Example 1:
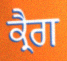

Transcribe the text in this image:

ਕ੍ਰੈਗ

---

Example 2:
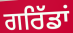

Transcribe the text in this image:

ਗਰਿੱਡਾਂ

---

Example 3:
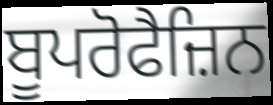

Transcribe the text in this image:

ਬੂਪਰੋਫੈਜ਼ਿਨ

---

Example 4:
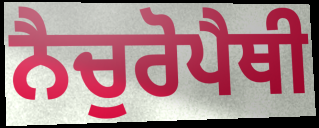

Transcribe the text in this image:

ਨੈਚੁਰੋਪੈਥੀ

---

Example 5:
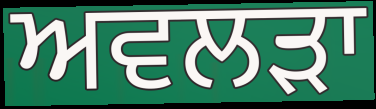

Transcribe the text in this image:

ਅਵਲੜਾ